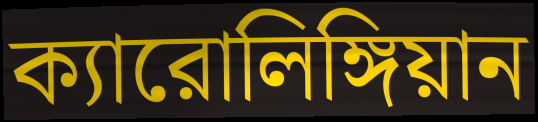
ক্যারোলিঙ্গিয়ান